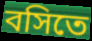
বসিতে